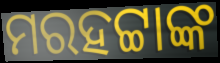
ମରହଟ୍ଟାଙ୍କ